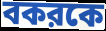
বকরকে